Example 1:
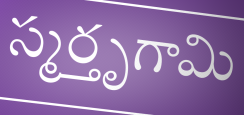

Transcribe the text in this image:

స్మర్తృగామి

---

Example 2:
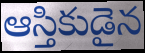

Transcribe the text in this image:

ఆస్తికుడైన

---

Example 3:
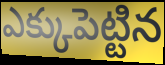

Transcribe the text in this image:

ఎక్కుపెట్టిన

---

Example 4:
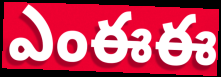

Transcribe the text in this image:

ఎంఈఈ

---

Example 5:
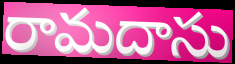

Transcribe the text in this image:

రామదాసు